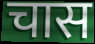
चास